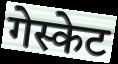
गेस्केट